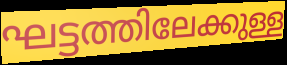
ഘട്ടത്തിലേക്കുള്ള